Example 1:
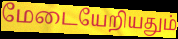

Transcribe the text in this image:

மேடையேறியதும்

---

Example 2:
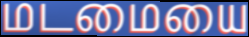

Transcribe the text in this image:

மடமையை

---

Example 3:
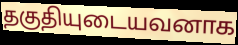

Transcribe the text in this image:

தகுதியுடையவனாக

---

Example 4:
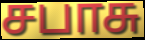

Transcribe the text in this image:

சபாசு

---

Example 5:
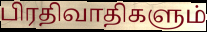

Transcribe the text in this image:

பிரதிவாதிகளும்